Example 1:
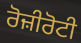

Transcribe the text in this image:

ਰੋਜ਼ੀਰੋਟੀ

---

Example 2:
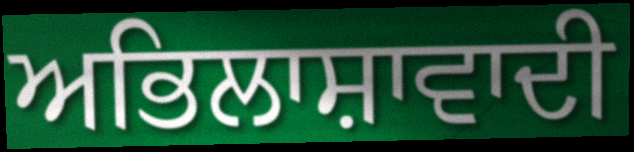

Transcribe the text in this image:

ਅਭਿਲਾਸ਼ਾਵਾਦੀ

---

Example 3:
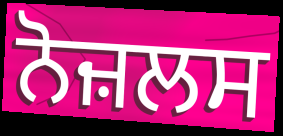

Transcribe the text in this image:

ਨੋਜ਼ਲਸ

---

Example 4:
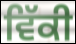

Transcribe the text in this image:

ਵਿੱਕੀ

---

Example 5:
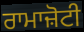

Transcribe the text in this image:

ਰਾਮਾਜ਼ੋਟੀ